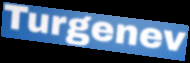
Turgenev